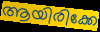
ആയിരിക്കേ